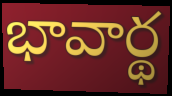
భావార్థ